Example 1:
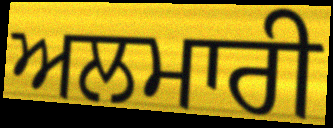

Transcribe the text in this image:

ਅਲਮਾਰੀ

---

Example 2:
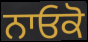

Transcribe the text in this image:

ਨਾਓਕੋ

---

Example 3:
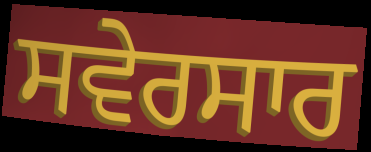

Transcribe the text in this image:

ਸਵੇਰਸਾਰ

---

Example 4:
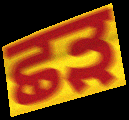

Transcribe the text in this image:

ਛੜ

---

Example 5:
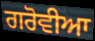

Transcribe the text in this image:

ਗਰੋਵੀਆ